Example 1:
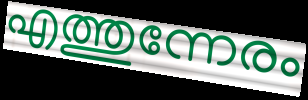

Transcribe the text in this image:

എത്തുന്നേരം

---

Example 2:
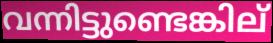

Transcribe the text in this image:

വന്നിട്ടുണ്ടെങ്കില്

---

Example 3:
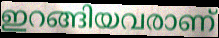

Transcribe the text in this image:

ഇറങ്ങിയവരാണ്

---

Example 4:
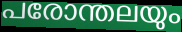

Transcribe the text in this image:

പരോന്തലയും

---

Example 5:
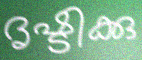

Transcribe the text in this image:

ദൃഷ്ടിക്കു